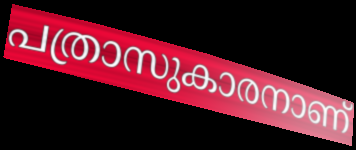
പത്രാസുകാരനാണ്